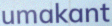
umakant